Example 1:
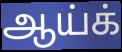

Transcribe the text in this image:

ஆய்க்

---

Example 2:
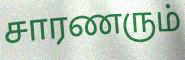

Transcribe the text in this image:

சாரணரும்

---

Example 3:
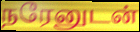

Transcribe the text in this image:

நரேனுடன்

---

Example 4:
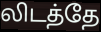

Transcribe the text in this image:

லிடத்தே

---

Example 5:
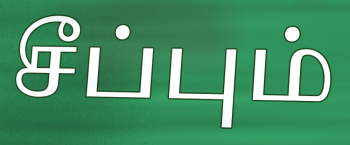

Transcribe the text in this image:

சீப்பும்